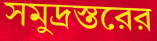
সমুদ্রস্তরের